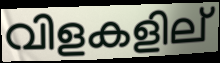
വിളകളില്